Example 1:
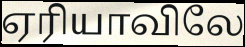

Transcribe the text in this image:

ஏரியாவிலே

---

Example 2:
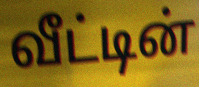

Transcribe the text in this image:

வீட்டின்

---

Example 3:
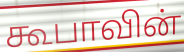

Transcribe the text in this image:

கூபாவின்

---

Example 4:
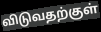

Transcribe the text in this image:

விடுவதற்குள்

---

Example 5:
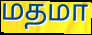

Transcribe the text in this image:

மதமா